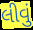
લીવું